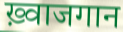
ख़्वाजगान